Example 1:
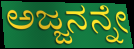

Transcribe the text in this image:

ಅಜ್ಜನನ್ನೇ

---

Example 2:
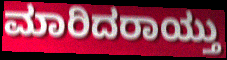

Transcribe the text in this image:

ಮಾರಿದರಾಯ್ತು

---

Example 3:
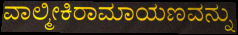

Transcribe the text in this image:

ವಾಲ್ಮೀಕಿರಾಮಾಯಣವನ್ನು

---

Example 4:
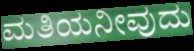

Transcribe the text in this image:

ಮತಿಯನೀವುದು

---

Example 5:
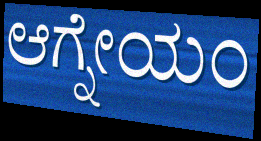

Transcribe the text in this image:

ಆಗ್ನೇಯಂ